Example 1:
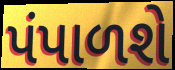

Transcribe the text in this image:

પંપાળશે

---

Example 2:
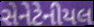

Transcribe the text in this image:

સેનેટેનીયલ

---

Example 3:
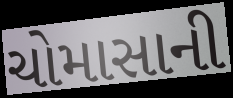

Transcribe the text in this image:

ચોમાસાની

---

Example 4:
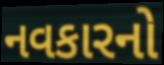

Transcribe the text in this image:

નવકારનો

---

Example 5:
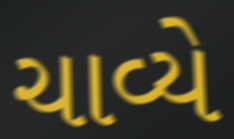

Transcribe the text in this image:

ચાવ્યે